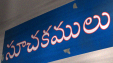
సూచకములు